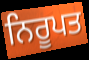
ਨਿਰੂਪਤ